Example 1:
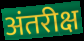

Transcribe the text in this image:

अंतरीक्ष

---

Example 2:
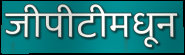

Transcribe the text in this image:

जीपीटीमधून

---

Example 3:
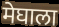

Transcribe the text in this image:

मेघाला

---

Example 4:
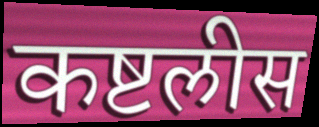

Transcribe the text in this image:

कष्टलीस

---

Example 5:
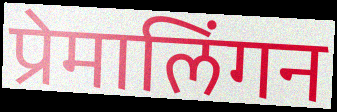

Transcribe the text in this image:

प्रेमालिंगन